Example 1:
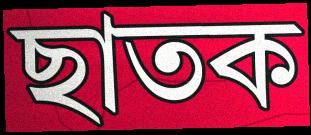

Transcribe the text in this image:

ছাতক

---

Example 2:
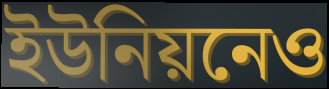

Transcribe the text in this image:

ইউনিয়নেও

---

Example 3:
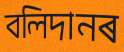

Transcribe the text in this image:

বলিদানৰ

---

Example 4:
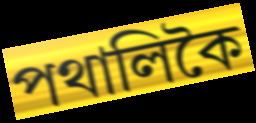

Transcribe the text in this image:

পথালিকৈ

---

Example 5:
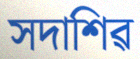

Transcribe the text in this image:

সদাশিৱ